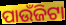
ପାଉଁଜିଟା